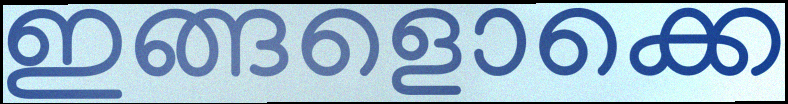
ഇങ്ങളൊക്കെ